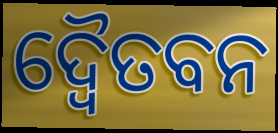
ଦ୍ୱୈତବନ